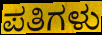
ಪತಿಗಳು